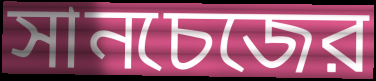
সানচেজের